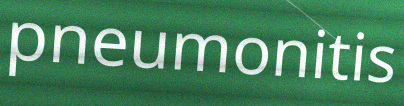
pneumonitis